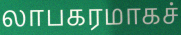
லாபகரமாகச்